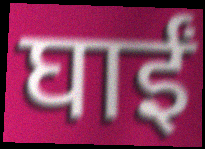
घाईं